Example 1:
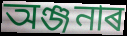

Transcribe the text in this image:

অঞ্জনাৰ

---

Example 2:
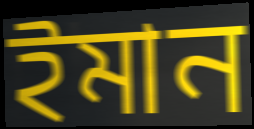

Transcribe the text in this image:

ইমান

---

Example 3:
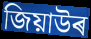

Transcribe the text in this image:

জিয়াউৰ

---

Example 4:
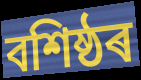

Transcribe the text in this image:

বশিষ্ঠৰ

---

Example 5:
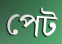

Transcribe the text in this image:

পেট